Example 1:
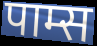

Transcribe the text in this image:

पाम्स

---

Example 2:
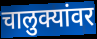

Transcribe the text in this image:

चालुक्यांवर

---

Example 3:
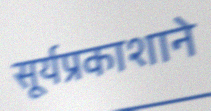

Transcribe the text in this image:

सूर्यप्रकाशाने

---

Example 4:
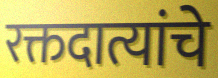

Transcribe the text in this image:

रक्तदात्यांचे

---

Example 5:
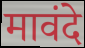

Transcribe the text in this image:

मावंदे